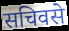
सचिवसे